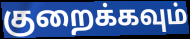
குறைக்கவும்